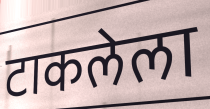
टाकलेला